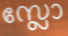
സ്ലോ